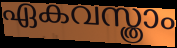
ഏകവസ്ത്രാം